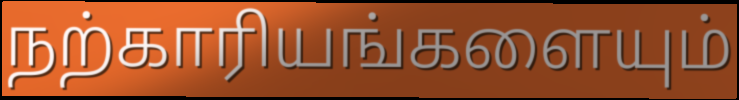
நற்காரியங்களையும்